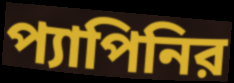
প্যাপিনির